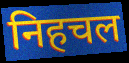
निहचल